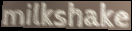
milkshake